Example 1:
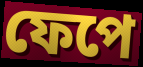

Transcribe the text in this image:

ফেপে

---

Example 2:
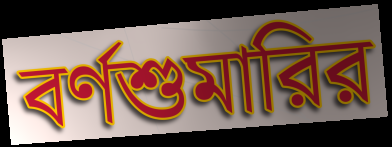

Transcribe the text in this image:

বর্ণশুমারির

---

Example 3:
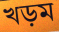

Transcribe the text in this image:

খড়ম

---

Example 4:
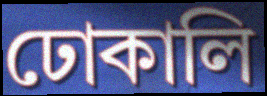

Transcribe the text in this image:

ঢোকালি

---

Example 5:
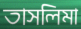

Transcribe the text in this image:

তাসলিমা